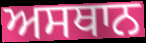
ਅਸਥਾਨ